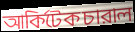
আর্কিটেকচারাল